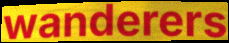
wanderers